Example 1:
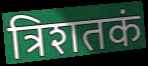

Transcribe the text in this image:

त्रिशतकं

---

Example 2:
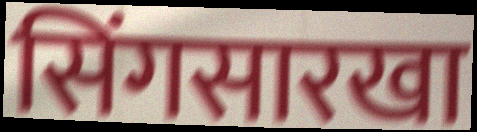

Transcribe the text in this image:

सिंगसारखा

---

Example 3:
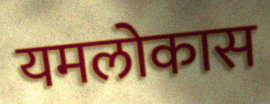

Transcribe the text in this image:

यमलोकास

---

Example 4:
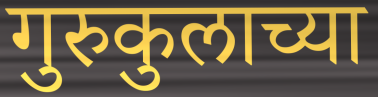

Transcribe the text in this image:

गुरुकुलाच्या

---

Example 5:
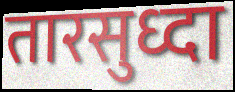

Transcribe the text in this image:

तारसुध्दा